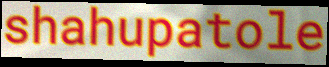
shahupatole